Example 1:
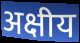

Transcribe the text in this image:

अक्षीय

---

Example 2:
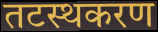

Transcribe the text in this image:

तटस्थकरण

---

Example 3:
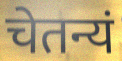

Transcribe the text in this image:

चेतन्यं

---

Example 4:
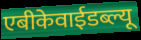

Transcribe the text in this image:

एबीकेवाईडब्ल्यू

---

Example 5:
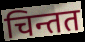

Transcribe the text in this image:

चिन्तत